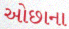
ઓછાના